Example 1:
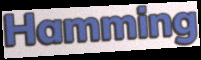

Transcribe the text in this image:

Hamming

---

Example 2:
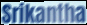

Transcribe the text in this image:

Srikantha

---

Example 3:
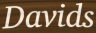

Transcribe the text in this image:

Davids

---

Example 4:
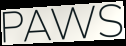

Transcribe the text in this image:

PAWS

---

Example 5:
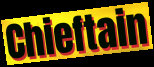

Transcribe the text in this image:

Chieftain